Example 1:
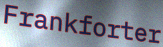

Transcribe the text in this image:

Frankforter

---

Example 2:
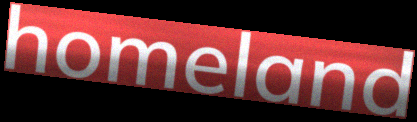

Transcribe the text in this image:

homeland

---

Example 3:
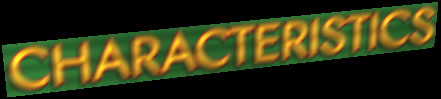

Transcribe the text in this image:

CHARACTERISTICS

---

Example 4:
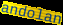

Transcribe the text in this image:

andolan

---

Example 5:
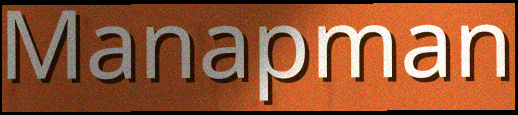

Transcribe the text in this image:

Manapman